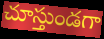
చూస్తుండగా